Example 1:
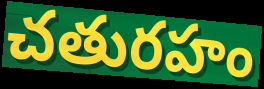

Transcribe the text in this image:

చతురహం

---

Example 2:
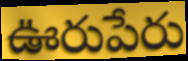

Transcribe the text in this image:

ఊరుపేరు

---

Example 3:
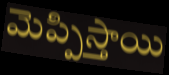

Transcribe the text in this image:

మెప్పిస్తాయి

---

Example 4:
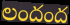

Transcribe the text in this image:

లందంద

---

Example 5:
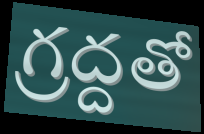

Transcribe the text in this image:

గ్రద్దతో